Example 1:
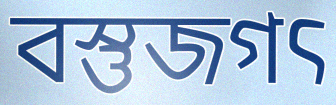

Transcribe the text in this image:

বস্তুজগৎ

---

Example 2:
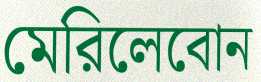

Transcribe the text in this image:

মেরিলেবোন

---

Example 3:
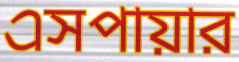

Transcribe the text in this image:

এসপায়ার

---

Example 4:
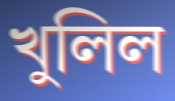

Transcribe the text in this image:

খুলিল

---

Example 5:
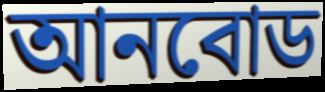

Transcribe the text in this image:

আনবোড